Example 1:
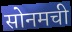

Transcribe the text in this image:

सोनमची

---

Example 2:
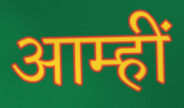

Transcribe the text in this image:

आम्हीं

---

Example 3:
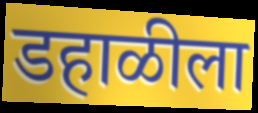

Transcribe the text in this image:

डहाळीला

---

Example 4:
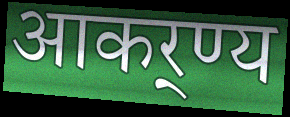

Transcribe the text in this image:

आकर्ण्य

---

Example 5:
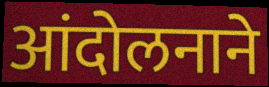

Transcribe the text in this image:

आंदोलनाने